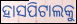
ହାସପିଟାଲକୁ